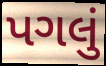
પગલું